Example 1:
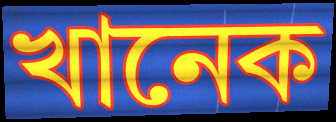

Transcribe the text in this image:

খানেক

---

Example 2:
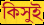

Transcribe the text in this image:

কিসুই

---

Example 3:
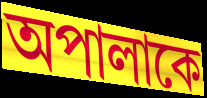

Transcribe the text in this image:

অপালাকে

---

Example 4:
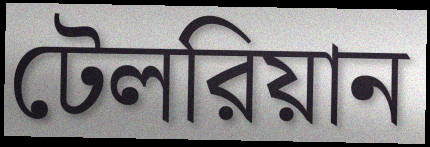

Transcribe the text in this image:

টেলরিয়ান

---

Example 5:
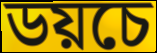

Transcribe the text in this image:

ডয়চে